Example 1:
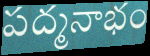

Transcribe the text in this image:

పద్మనాభం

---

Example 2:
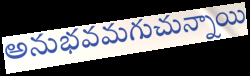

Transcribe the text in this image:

అనుభవమగుచున్నాయి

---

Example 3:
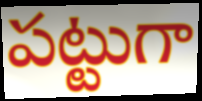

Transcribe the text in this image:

పట్టుగా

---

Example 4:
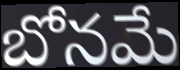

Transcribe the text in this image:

బోనమే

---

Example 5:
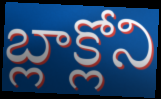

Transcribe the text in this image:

బ్లాక్లోని